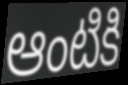
ఆంటికి